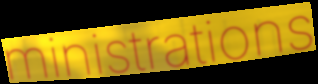
ministrations